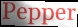
Pepper